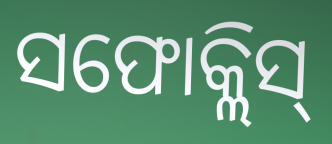
ସଫୋକ୍ଲିସ୍